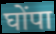
घोंपा